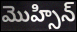
మొహ్సిన్